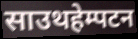
साउथहेम्पटन